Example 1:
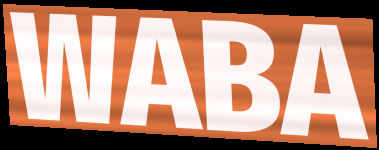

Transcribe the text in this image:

WABA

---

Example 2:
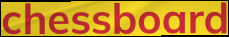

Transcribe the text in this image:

chessboard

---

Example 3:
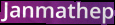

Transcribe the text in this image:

Janmathep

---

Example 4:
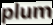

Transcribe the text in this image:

plum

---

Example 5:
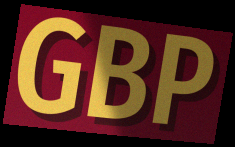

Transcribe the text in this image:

GBP